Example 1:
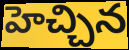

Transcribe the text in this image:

హెచ్చిన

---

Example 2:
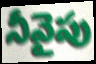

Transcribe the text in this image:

నీవైపు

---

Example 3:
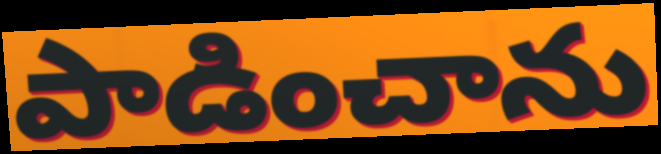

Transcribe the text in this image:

పాడించాను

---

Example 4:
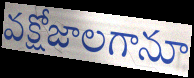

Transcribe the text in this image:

వక్షోజాలగానూ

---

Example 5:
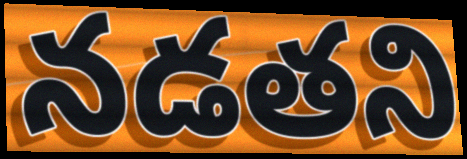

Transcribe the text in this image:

నడతని